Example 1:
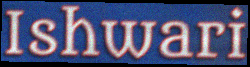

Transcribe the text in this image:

Ishwari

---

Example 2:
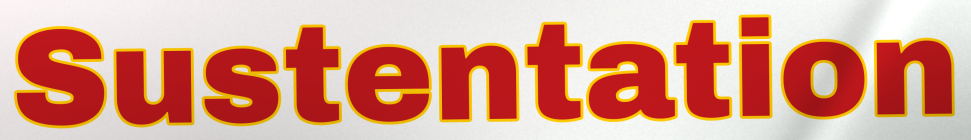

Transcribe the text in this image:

Sustentation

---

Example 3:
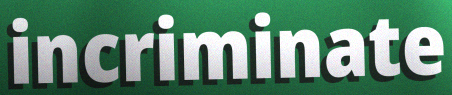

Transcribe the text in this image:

incriminate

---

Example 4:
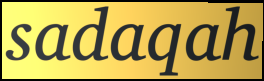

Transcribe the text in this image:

sadaqah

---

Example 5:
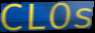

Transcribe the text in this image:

CLOs